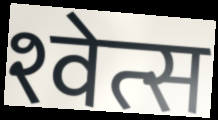
श्वेत्स